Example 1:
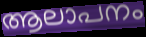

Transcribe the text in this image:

ആലാപനം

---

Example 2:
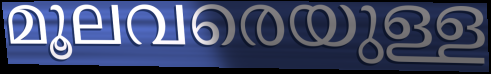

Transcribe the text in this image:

മൂലവരെയുള്ള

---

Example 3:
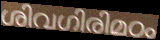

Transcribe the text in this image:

ശിവഗിരിമഠം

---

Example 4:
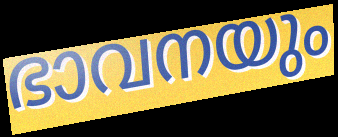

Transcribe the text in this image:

ഭാവനയും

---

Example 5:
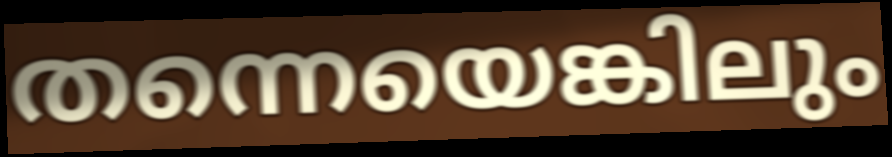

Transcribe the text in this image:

തന്നെയെങ്കിലും